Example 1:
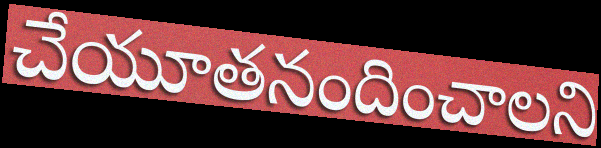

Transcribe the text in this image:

చేయూతనందించాలని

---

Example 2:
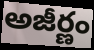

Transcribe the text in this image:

అజీర్ణం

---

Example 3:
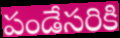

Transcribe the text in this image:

పండేసరికి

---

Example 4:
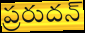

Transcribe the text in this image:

ప్రరుదన్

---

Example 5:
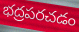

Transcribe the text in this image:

భద్రపరచడం